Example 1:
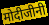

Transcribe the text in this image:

मोदीजीनी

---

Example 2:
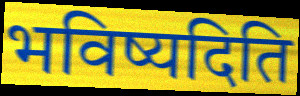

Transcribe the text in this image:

भविष्यदिति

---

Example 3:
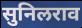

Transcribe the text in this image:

सुनिलराव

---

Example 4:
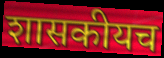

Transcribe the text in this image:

शासकीयच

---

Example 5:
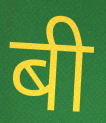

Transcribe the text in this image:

बी